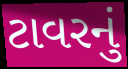
ટાવરનું